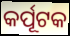
କର୍ପୂଟକ